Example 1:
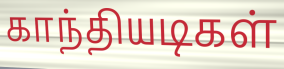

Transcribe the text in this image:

காந்தியடிகள்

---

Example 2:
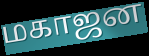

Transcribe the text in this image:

மகாஜன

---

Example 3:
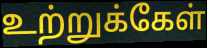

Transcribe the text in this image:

உற்றுக்கேள்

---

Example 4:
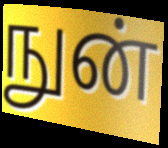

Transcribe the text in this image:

நுன்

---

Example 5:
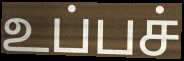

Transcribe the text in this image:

உப்பச்